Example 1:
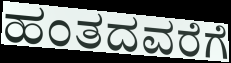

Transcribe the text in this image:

ಹಂತದವರೆಗೆ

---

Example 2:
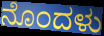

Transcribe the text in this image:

ನೊಂದಳು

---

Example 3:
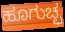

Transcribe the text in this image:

ಹೂಗುಚ್ಛ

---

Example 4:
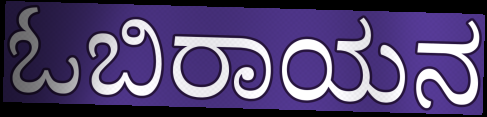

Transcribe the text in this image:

ಓಬಿರಾಯನ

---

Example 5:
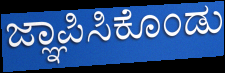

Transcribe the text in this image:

ಜ್ಞಾಪಿಸಿಕೊಂಡು